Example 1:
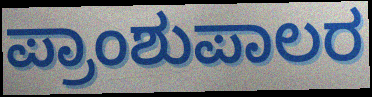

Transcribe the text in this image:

ಪ್ರಾಂಶುಪಾಲರ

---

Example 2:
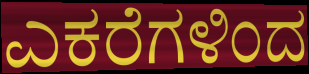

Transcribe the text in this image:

ಎಕರೆಗಳಿಂದ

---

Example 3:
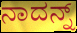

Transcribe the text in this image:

ನಾದನ್ನ್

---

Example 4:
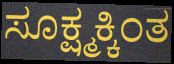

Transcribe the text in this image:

ಸೂಕ್ಷ್ಮಕ್ಕಿಂತ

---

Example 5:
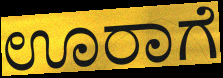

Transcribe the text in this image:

ಊರಾಗೆ